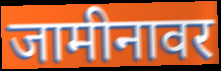
जामीनावर